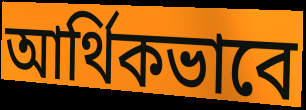
আর্থিকভাবে